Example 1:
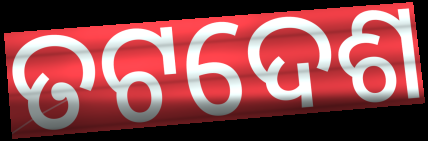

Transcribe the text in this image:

ତଟଦେଶ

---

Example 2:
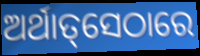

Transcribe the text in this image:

ଅର୍ଥାତ୍‌ସେଠାରେ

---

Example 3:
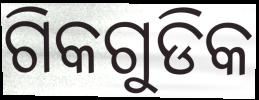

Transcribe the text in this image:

ଗିକଗୁଡିକ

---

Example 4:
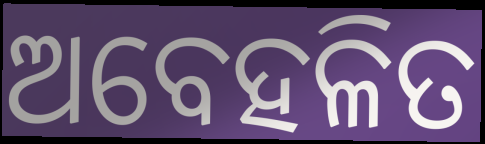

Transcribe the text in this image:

ଅବେହଳିତ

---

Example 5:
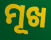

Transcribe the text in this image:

ମୂଖ